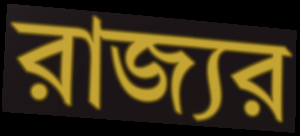
রাজ্যর